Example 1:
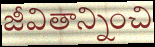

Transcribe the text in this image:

జీవితాన్నించి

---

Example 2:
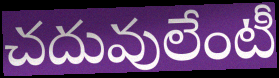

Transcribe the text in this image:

చదువులేంటీ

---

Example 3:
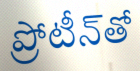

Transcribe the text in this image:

ప్రోటీన్‌తో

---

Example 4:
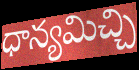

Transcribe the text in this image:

ధాన్యమిచ్చి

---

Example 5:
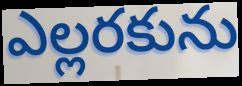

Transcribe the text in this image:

ఎల్లరకును